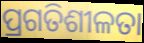
ପ୍ରଗତିଶୀଳତା